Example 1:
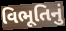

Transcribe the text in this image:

વિભૂતિનું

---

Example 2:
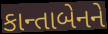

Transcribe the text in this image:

કાન્તાબેનને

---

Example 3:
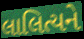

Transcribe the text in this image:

લાલિત્યને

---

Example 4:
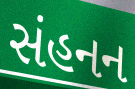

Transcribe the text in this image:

સંહનન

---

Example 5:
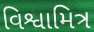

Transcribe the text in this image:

વિશ્વામિત્ર